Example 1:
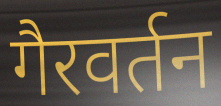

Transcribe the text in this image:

गैरवर्तन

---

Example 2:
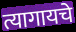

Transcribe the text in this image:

त्यागायचे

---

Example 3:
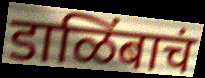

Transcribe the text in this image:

डाळिंबाचं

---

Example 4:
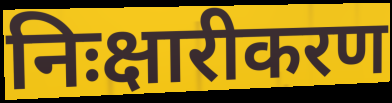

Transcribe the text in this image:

निःक्षारीकरण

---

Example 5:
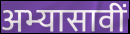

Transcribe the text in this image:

अभ्यासावीं